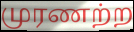
முரணற்ற